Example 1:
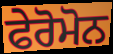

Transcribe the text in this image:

ਫੇਰੋਮੋਨ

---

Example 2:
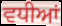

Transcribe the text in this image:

ਵਧੀਆਂ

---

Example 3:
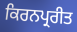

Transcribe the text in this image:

ਕਿਰਨਪ੍ਰਰੀਤ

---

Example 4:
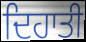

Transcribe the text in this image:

ਦਿਹਾਤੀ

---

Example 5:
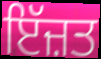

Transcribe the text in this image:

ਇੱਜ਼ਤ